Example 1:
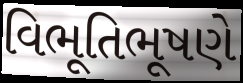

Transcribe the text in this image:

વિભૂતિભૂષણે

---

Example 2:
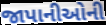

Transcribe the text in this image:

જાપાનીઓની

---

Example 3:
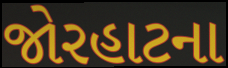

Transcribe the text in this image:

જોરહાટના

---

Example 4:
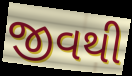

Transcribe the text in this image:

જીવથી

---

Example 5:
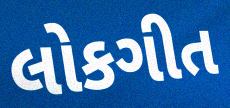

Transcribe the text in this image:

લોકગીત